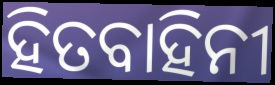
ହିତବାହିନୀ